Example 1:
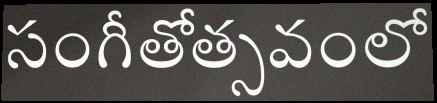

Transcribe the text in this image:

సంగీతోత్సవంలో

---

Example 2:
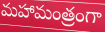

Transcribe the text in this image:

మహామంత్రంగా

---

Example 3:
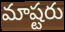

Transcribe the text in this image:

మాష్టరు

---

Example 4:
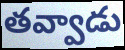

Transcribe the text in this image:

తవ్వాడు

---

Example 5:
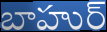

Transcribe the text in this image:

బాహుర్